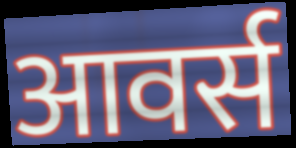
आवर्स